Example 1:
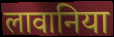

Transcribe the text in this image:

लावानिया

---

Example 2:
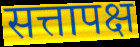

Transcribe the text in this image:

सत्तापक्ष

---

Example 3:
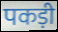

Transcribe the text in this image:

पकड़ी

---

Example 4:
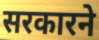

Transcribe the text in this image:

सरकारने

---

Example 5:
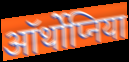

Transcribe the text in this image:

ऑर्थोप्निया